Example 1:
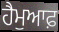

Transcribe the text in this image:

ਹੈਮੁਆਫ਼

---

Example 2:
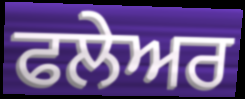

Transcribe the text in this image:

ਫਲੇਅਰ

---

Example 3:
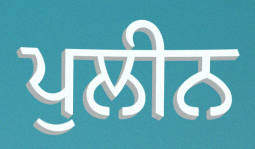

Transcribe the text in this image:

ਪੁਲੀਨ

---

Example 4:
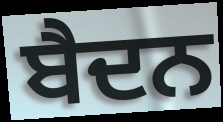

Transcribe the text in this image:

ਬੈਦਨ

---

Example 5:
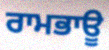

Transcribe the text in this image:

ਰਾਮਭਾਊ